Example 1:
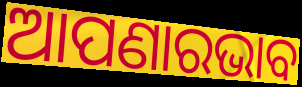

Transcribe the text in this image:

ଆପଣାରଭାବ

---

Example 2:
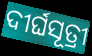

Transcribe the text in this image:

ଦୀର୍ଘସୂତ୍ରୀ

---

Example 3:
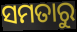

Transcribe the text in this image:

ସମତାରୁ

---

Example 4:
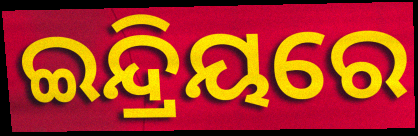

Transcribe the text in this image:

ଇନ୍ଦ୍ରିୟରେ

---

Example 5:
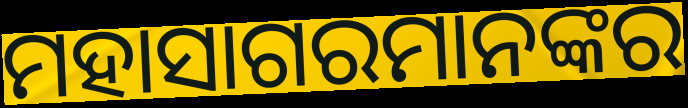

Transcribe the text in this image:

ମହାସାଗରମାନଙ୍କର